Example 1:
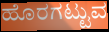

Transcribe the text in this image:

ಹೊರಗಟ್ಟುವ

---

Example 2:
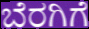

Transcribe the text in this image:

ಬೆರಗಿಗೆ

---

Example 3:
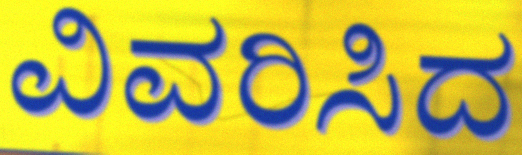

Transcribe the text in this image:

ವಿವರಿಸಿದ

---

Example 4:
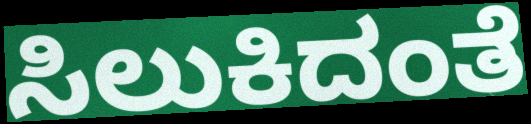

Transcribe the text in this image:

ಸಿಲುಕಿದಂತೆ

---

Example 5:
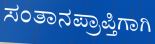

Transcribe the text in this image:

ಸಂತಾನಪ್ರಾಪ್ತಿಗಾಗಿ